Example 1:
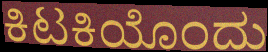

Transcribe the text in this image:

ಕಿಟಕಿಯೊಂದು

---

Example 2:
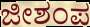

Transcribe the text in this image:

ಜೀಶಂಪ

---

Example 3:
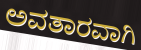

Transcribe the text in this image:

ಅವತಾರವಾಗಿ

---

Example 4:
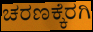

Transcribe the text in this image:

ಚರಣಕ್ಕೆರಗಿ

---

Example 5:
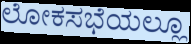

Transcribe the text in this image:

ಲೋಕಸಭೆಯಲ್ಲೂ